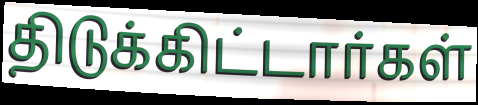
திடுக்கிட்டார்கள்